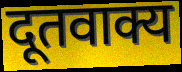
दूतवाक्य